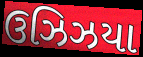
ઉઝિઝયા